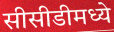
सीसीडीमध्ये